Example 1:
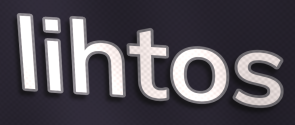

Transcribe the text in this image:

lihtos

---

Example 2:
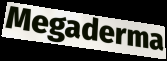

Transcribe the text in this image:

Megaderma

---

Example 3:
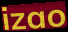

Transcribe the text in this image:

izao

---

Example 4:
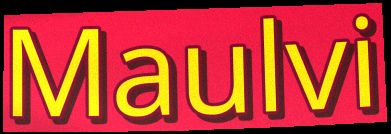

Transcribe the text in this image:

Maulvi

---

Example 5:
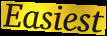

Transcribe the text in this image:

Easiest